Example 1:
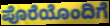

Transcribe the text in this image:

ಪೊರೆಯೊಂದಿಗೆ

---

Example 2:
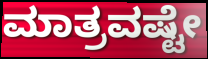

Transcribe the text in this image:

ಮಾತ್ರವಷ್ಟೇ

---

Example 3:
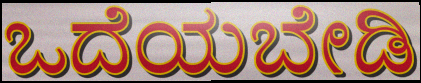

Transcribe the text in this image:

ಒದೆಯಬೇಡಿ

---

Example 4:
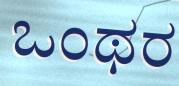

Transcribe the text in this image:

ಒಂಥರ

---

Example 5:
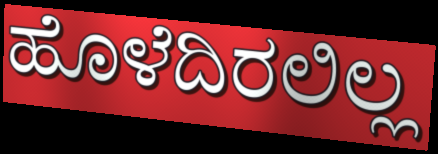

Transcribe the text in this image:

ಹೊಳೆದಿರಲಿಲ್ಲ